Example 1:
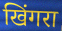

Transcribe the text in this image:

खिंगरा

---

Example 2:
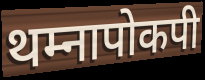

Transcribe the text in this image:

थम्नापोकपी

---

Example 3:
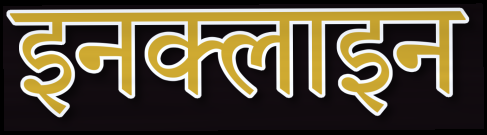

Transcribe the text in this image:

इनक्लाइन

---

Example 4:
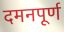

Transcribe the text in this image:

दमनपूर्ण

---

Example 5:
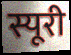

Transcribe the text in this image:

स्यूरी